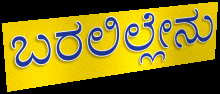
ಬರಲಿಲ್ಲೇನು